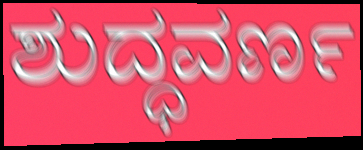
ಶುದ್ಧವರ್ಣ